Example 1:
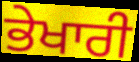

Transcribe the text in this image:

ਭੇਖਾਰੀ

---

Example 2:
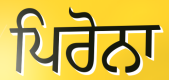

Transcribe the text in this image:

ਪਿਰੋਨਾ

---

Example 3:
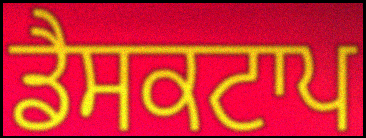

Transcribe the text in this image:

ਡੈਸਕਟਾਪ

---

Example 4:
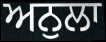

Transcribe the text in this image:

ਅਨੁਲਾ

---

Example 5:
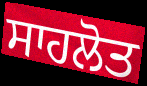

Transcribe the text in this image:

ਸਾਹਲੋਤ